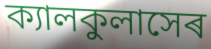
ক্যালকুলাসেৰ